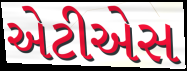
એટીએસ